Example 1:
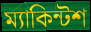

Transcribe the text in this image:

ম্যাকিন্টশ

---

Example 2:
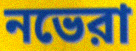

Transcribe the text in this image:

নভেরা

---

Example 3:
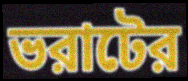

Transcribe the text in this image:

ভরাটের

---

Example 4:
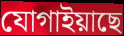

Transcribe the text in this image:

যোগাইয়াছে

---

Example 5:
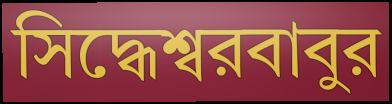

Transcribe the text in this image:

সিদ্ধেশ্বরবাবুর